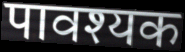
पावश्यक